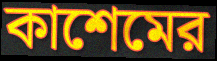
কাশেমের